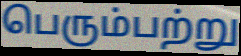
பெரும்பற்று